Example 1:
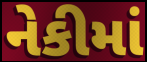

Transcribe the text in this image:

નેકીમાં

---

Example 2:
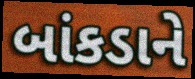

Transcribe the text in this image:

બાંકડાને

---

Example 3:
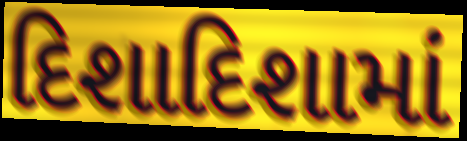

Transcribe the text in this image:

દિશાદિશામાં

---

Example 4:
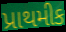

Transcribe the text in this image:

પ્રાથમીક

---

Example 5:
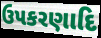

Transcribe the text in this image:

ઉપકરણાદિ